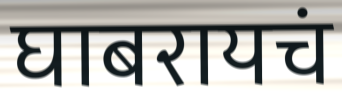
घाबरायचं